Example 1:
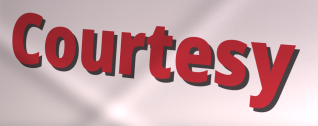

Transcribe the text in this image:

Courtesy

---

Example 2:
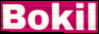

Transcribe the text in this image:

Bokil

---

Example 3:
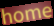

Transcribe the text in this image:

home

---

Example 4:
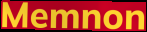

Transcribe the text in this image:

Memnon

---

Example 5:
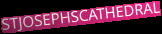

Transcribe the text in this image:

STJOSEPHSCATHEDRAL